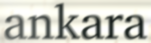
ankara